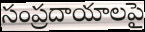
సంప్రదాయాలపై